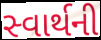
સ્વાર્થની